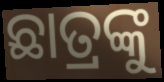
ଛାତ୍ରଙ୍କୁ